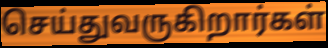
செய்துவருகிறார்கள்